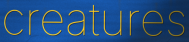
creatures